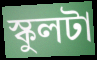
স্কুলটা